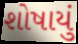
શોષાયું